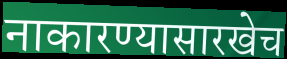
नाकारण्यासारखेच